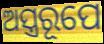
ଅସ୍ତ୍ରରୂପେ